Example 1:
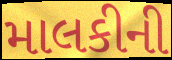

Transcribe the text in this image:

માલકીની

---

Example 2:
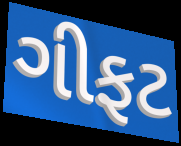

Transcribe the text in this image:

ગીફટ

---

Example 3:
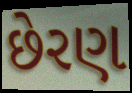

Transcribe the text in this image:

છેરણ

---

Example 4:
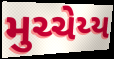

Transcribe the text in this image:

મુચ્ચેય્ય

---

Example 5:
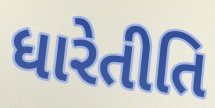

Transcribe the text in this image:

ધારેતીતિ